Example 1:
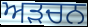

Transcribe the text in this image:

ਅੜਚਨ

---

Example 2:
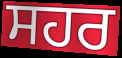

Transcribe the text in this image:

ਸਹਰ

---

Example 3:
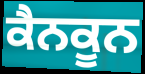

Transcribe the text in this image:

ਕੈਨਕੂਨ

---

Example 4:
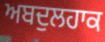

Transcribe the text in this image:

ਅਬਦੁਲਹਾਕ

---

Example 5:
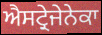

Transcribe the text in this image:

ਐਸਟ੍ਰੇਜੇਨੇਕਾ